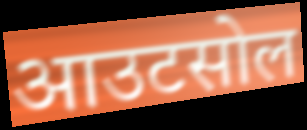
आउटसोल